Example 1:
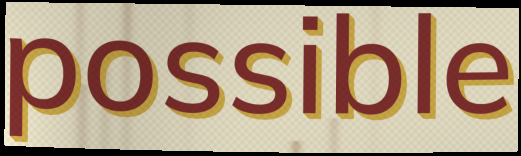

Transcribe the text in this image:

possible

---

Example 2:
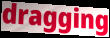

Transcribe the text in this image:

dragging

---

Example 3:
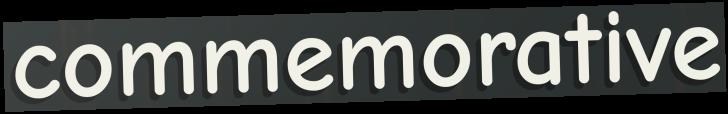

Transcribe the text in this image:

commemorative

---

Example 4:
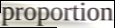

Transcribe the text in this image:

proportion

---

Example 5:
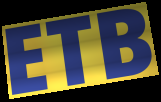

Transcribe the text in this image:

ETB